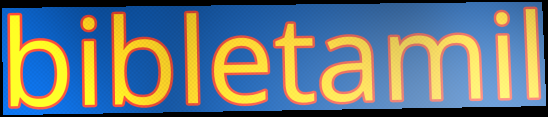
bibletamil